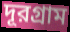
দূরগ্রাম